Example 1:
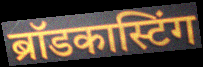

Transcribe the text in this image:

ब्रॉडकास्टिंग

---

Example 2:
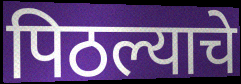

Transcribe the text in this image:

पिठल्याचे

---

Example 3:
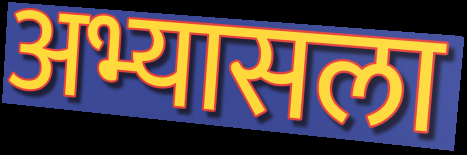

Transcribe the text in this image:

अभ्यासला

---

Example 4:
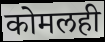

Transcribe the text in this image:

कोमलही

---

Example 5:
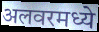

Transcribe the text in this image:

अलवरमध्ये